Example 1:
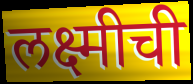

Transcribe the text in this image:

लक्ष्मीची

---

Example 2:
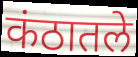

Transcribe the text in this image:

कंठातले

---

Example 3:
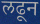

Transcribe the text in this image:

लढून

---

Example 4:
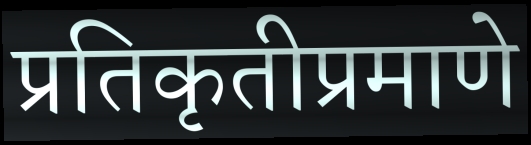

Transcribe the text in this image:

प्रतिकृतीप्रमाणे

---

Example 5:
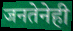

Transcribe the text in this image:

जनतेनेही